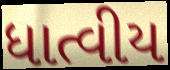
ધાત્વીય